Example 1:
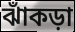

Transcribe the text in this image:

ঝাঁকড়া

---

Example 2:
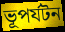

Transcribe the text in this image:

ভূপর্যটন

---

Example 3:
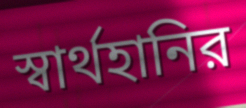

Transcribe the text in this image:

স্বার্থহানির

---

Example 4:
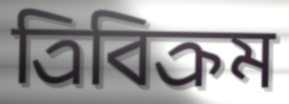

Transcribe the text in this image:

ত্রিবিক্রম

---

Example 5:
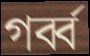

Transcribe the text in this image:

গর্ব্ব